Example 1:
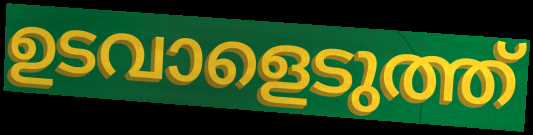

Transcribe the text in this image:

ഉടവാളെടുത്ത്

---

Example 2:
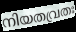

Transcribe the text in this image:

നിയതവ്രതഃ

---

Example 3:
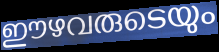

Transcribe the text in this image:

ഈഴവരുടെയും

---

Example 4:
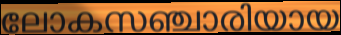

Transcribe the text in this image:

ലോകസഞ്ചാരിയായ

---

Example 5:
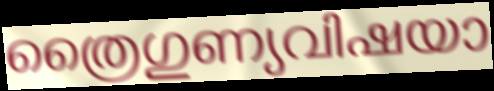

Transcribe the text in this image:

ത്രൈഗുണ്യവിഷയാ